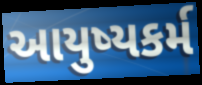
આયુષ્યકર્મ